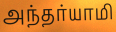
அந்தர்யாமி